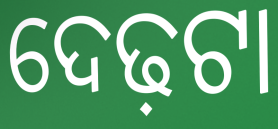
ଦେଢ଼ଟା